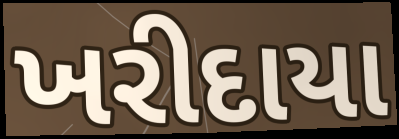
ખરીદાયા